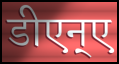
डीएन्ए